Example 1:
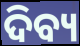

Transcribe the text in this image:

ଦିବ୍ୟ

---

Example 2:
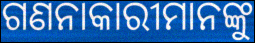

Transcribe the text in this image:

ଗଣନାକାରୀମାନଙ୍କୁ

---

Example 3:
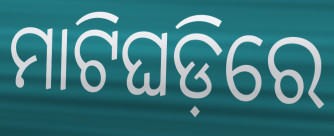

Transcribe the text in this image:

ମାଟିଘଡ଼ିରେ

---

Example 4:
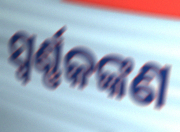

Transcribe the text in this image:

ସ୍ୱର୍ଣ୍ଣକଙ୍କଣ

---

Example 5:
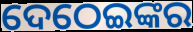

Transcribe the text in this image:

ଦେଠେଇଙ୍କର